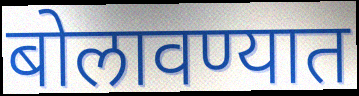
बोलावण्यात